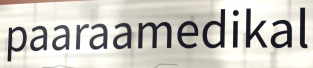
paaraamedikal